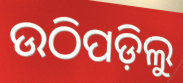
ଉଠିପଡ଼ିଲୁ